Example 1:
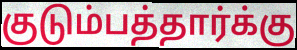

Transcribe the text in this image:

குடும்பத்தார்க்கு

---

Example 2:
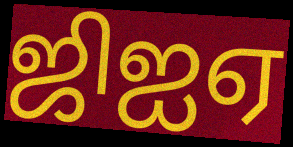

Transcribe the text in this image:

ஜிஐஏ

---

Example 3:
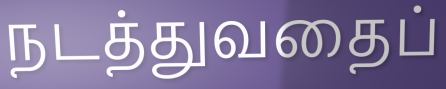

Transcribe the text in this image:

நடத்துவதைப்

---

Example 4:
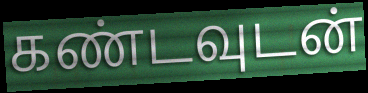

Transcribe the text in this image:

கண்டவுடன்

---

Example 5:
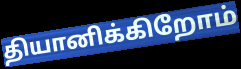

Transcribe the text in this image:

தியானிக்கிறோம்